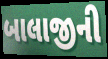
બાલાજીની